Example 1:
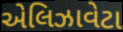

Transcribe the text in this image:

એલિઝાવેટા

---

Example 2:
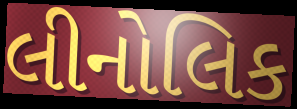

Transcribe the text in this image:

લીનોલિક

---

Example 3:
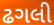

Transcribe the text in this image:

ઢગલી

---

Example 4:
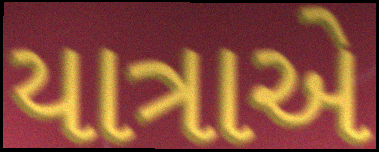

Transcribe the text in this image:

યાત્રાએ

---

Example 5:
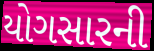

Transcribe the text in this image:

યોગસારની